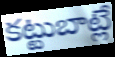
కట్టుబాట్లే